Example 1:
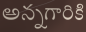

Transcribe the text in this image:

అన్నగారికి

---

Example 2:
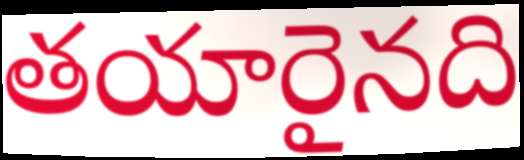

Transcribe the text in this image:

తయారైనది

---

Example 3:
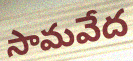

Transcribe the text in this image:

సామవేద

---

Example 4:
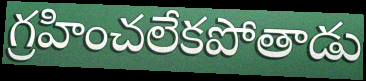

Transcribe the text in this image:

గ్రహించలేకపోతాడు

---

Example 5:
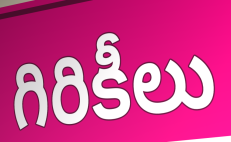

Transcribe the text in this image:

గిరికీలు